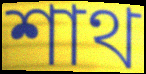
শাথ